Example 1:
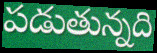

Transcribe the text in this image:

పడుతున్నది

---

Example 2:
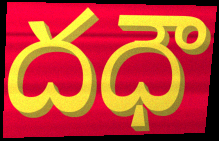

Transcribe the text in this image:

దధౌ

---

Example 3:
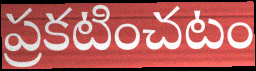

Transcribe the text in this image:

ప్రకటించటం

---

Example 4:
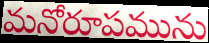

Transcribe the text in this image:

మనోరూపమును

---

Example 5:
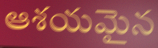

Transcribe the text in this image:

ఆశయమైన